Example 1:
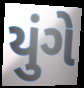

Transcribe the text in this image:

યુંગે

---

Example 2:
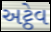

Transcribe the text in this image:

અટ્ઠેવ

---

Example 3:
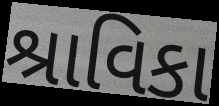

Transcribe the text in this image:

શ્રાવિકા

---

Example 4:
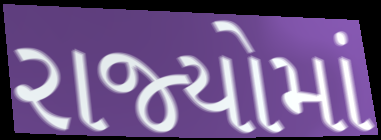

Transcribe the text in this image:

રાજ્‍યોમાં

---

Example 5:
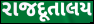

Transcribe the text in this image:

રાજદૂતાલય